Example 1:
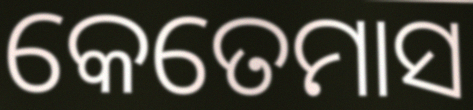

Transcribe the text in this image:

କେତେମାସ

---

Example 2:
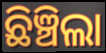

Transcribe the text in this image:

ଛିଞ୍ଚିଲା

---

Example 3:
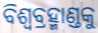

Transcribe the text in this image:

ବିଶ୍ବବ୍ରହ୍ମାଣ୍ଡକୁ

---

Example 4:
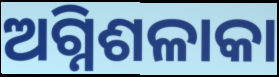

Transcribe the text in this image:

ଅଗ୍ନିଶଳାକା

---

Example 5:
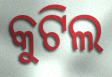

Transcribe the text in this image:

କୁଟିଲ